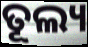
ତୂଲ୍ୟ